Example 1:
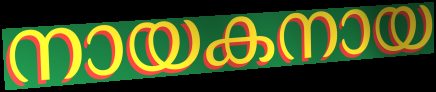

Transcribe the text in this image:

നായകനായ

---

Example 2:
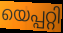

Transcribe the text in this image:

യെപ്പറ്റി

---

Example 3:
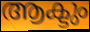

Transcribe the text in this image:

ആക്ടും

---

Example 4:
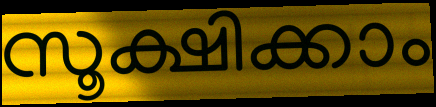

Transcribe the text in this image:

സൂക്ഷിക്കാം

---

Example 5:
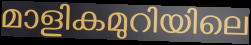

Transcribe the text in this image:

മാളികമുറിയിലെ